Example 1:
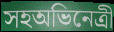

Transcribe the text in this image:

সহঅভিনেত্রী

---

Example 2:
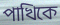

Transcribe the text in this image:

পাখিকে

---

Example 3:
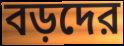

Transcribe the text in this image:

বড়দের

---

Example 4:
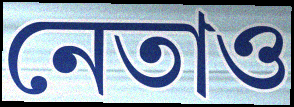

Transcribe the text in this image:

নেতাও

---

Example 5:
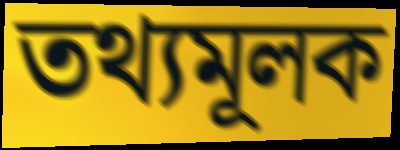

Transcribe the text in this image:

তথ্যমূলক